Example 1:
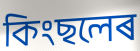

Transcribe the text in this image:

কিংছলেৰ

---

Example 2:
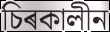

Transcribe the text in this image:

চিৰকালীন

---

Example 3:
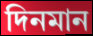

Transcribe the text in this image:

দিনমান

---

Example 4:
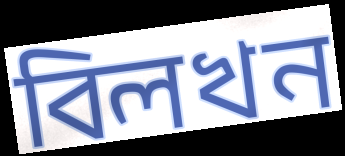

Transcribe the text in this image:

বিলখন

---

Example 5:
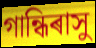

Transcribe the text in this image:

গান্ধিৰাসু